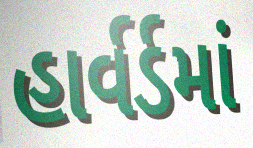
હાર્વર્ડમાં